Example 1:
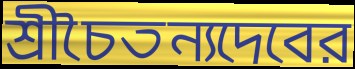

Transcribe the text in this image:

শ্রীচৈতন্যদেবের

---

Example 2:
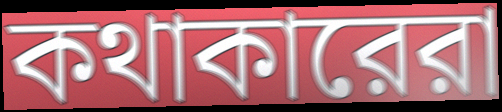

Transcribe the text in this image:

কথাকারেরা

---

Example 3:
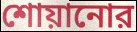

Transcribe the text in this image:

শোয়ানোর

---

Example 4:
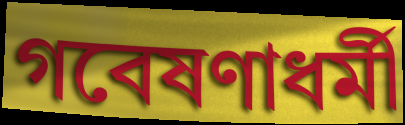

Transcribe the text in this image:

গবেষণাধর্মী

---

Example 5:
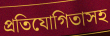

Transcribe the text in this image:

প্রতিযোগিতাসহ